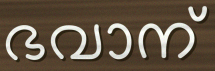
ഭവാന്